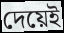
দেয়েই